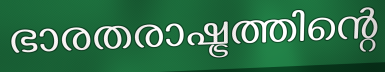
ഭാരതരാഷ്ട്രത്തിന്റെ